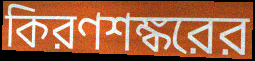
কিরণশঙ্করের